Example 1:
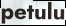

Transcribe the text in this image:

petulu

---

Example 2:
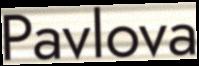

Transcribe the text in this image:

Pavlova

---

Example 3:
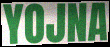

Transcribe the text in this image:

YOJNA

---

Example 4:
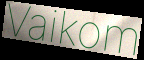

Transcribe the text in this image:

Vaikom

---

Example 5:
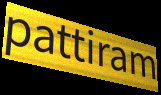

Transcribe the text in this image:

pattiram